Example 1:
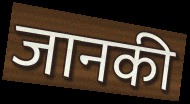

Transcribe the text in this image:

जानकी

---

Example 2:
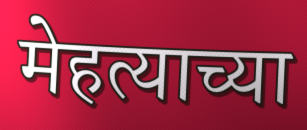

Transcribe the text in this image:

मेहत्याच्या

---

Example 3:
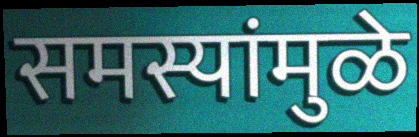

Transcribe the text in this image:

समस्यांमुळे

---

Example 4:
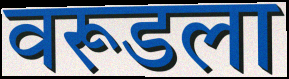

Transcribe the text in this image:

वरूडला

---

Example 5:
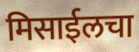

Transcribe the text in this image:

मिसाईलचा